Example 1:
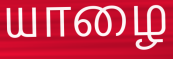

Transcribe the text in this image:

யாழை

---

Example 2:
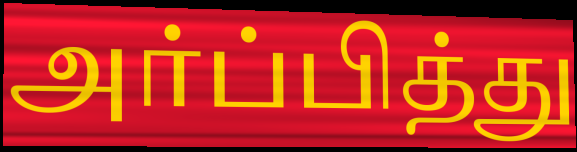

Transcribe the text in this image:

அர்ப்பித்து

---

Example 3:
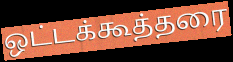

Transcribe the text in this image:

ஒட்டக்கூத்தரை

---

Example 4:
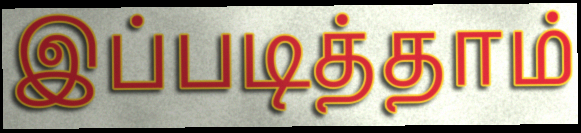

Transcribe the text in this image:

இப்படித்தாம்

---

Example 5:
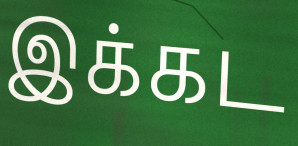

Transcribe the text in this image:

இக்கட